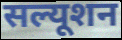
सल्यूशन